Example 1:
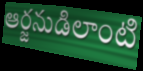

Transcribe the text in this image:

ఆర్జనుడిలాంటి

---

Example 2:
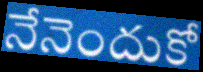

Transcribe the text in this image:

నేనెందుకో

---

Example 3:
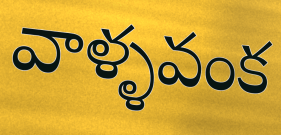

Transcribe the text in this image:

వాళ్ళవంక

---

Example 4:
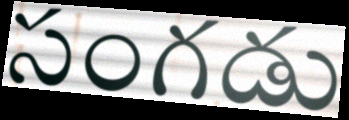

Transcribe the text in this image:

సంగడు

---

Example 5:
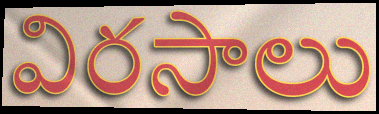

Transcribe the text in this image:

విరసాలు